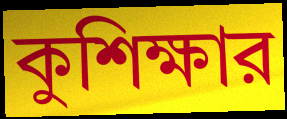
কুশিক্ষার